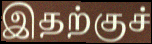
இதற்குச்